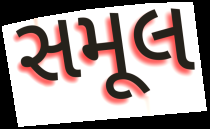
સમૂલ